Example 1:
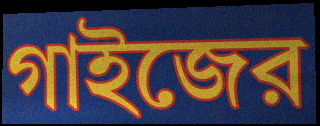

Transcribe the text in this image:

গাইজের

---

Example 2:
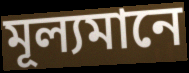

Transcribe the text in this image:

মূল্যমানে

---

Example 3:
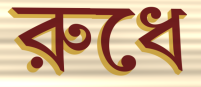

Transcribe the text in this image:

রুধে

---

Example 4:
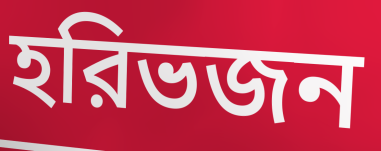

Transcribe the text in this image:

হরিভজন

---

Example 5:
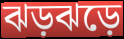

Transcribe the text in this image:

ঝড়ঝড়ে